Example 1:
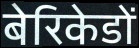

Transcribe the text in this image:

बेरिकेडों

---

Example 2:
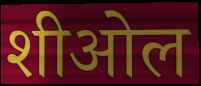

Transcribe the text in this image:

शीओल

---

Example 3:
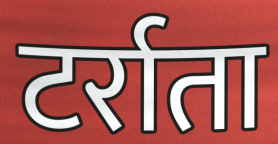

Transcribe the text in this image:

टर्राता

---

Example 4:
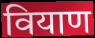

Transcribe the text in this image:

वियाण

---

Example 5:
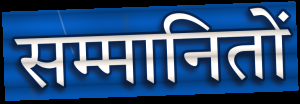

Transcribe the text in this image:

सम्मानितों